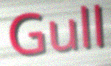
Gull